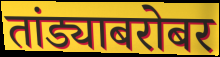
तांड्याबरोबर